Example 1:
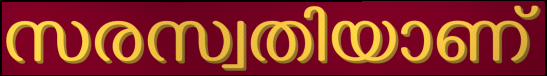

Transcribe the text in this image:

സരസ്വതിയാണ്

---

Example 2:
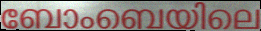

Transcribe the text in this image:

ബോംബെയിലെ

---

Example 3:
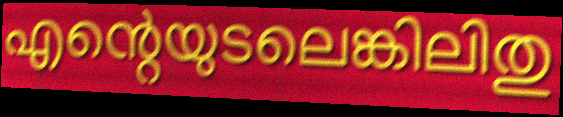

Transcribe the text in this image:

എന്റെയുടലെങ്കിലിതു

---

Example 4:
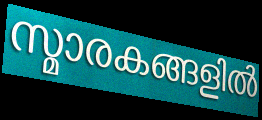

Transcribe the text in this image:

സ്മാരകങ്ങളിൽ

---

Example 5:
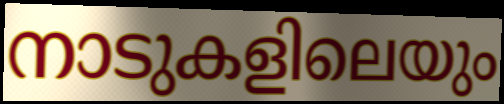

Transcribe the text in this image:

നാടുകളിലെയും